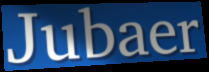
Jubaer